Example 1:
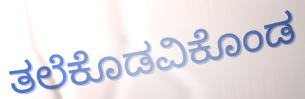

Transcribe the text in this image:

ತಲೆಕೊಡವಿಕೊಂಡ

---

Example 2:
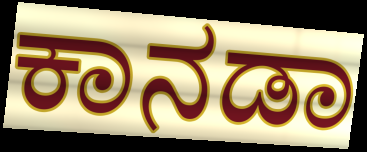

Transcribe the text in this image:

ಕಾನಡಾ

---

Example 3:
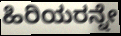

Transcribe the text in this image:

ಹಿರಿಯರನ್ನೇ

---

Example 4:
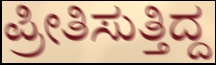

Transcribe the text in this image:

ಪ್ರೀತಿಸುತ್ತಿದ್ದ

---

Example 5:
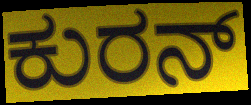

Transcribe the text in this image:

ಕುರನ್